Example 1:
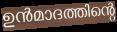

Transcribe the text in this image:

ഉൻമാദത്തിന്റെ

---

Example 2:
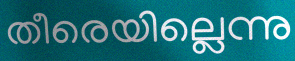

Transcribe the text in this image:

തീരെയില്ലെന്നു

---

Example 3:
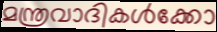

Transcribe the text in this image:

മന്ത്രവാദികൾക്കോ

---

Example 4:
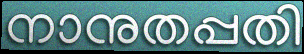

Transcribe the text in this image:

നാനുതപ്പതി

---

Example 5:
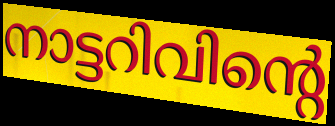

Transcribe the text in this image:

നാട്ടറിവിന്റെ